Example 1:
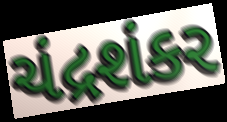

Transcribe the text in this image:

ચંદ્રશંકર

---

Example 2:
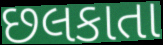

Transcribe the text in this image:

છલકાતા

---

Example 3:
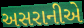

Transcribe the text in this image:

અસરાનીએ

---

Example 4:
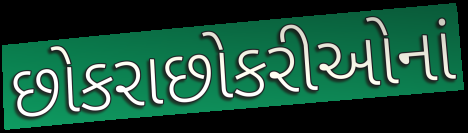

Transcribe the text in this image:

છોકરાછોકરીઓનાં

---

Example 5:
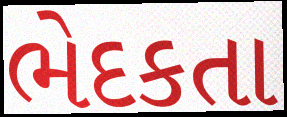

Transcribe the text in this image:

ભેદકતા